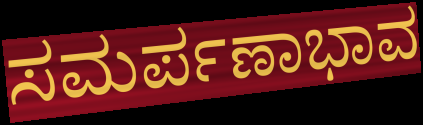
ಸಮರ್ಪಣಾಭಾವ